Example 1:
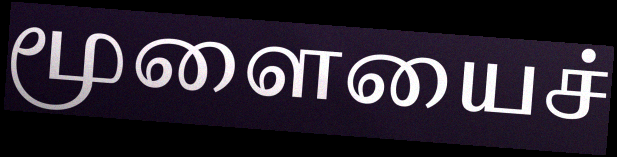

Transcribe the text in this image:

மூளையைச்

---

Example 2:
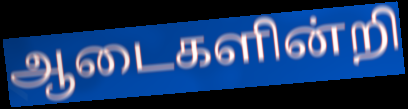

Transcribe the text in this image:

ஆடைகளின்றி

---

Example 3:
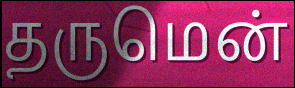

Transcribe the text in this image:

தருமென்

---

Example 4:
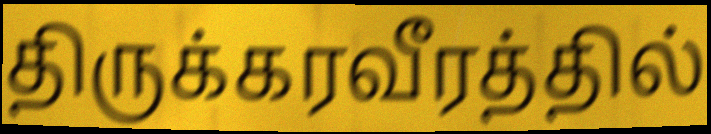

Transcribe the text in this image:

திருக்கரவீரத்தில்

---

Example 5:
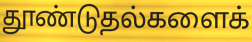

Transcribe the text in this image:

தூண்டுதல்களைக்